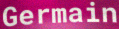
Germain